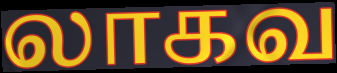
லாகவ